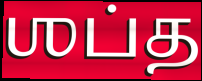
ஶப்த